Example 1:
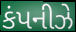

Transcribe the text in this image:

કંપનીઝે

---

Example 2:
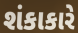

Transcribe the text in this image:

શંકાકારે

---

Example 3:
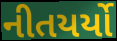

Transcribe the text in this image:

નીતયર્યો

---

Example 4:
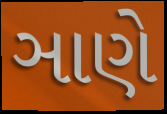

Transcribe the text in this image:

ઞાણે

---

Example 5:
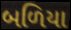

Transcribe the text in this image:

બળિયા